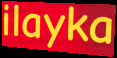
ilayka